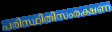
പരിസ്ഥിതിസംരക്ഷണ